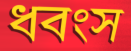
ধবংস